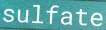
sulfate